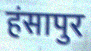
हंसापुर